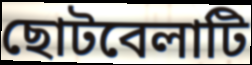
ছোটবেলাটি